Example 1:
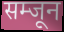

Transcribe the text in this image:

सम्जून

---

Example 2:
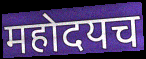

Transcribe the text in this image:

महोदयच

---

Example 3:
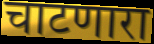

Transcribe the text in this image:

चाटणारा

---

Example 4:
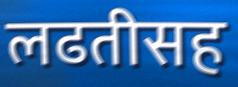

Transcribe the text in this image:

लढतीसह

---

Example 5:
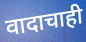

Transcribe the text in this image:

वादाचाही